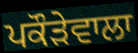
ਪਕੌੜੇਵਾਲਾ